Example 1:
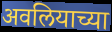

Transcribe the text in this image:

अवलियाच्या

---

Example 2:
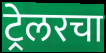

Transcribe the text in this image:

ट्रेलरचा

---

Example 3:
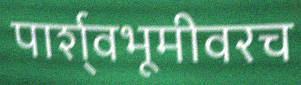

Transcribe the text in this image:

पार्श्वभूमीवरच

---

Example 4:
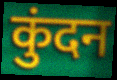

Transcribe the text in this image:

कुंदन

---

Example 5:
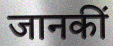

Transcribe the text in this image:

जानकीं